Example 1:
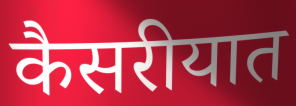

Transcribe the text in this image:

कैसरीयात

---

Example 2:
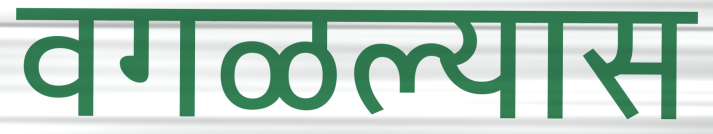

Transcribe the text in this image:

वगळल्यास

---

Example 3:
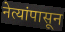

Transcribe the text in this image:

नेत्यांपासून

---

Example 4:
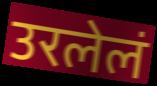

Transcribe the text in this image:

उरलेलं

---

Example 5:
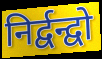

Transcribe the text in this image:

निर्द्वन्द्वो